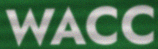
WACC